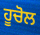
ਹੂਚੋਲ